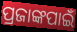
ପ୍ରଜାଙ୍କପାଇଁ